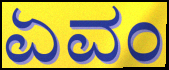
ಏವಂ